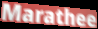
Marathee